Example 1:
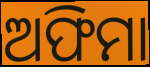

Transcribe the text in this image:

ଅଫିମା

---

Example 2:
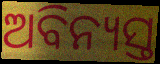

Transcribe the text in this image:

ଅବିନ୍ୟସ୍ତ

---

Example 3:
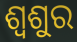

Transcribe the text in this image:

ଶ୍ଵଶୁର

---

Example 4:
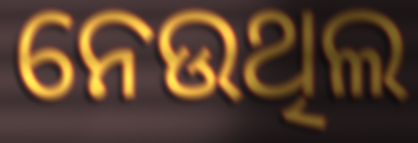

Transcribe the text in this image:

ନେଉଥିଲ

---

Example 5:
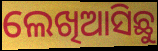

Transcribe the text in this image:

ଲେଖିଆସିଛୁ